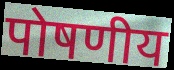
पोषणीय